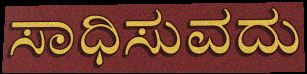
ಸಾಧಿಸುವದು